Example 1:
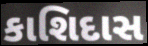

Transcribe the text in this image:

કાશિદાસ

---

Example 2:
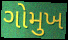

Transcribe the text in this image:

ગોમુખ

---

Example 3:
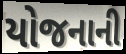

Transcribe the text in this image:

યોજનાની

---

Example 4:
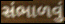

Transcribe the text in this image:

સંભાળવું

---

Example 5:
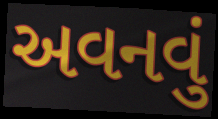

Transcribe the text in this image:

અવનવું